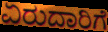
ಏರುದಾರಿಗೆ